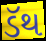
ડૅથ